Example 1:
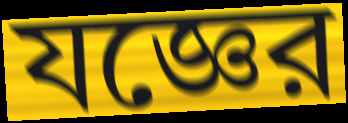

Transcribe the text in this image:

যজ্ঞের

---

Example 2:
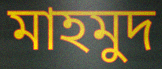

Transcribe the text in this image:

মাহমুদ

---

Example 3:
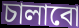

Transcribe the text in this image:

চালাবো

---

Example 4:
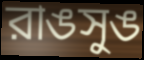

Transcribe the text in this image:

রাঙসুঙ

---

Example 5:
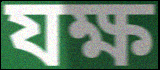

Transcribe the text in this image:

যক্ষ